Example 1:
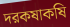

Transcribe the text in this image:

দরকষাকষি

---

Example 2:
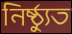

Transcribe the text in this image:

নিষ্ঠ্যুত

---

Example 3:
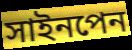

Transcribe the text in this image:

সাইনপেন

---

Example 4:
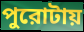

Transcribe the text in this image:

পুরোটায়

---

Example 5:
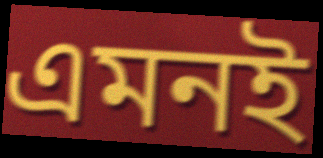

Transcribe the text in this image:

এমনই